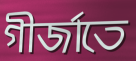
গীর্জাতে